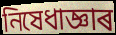
নিষেধাজ্ঞাৰ